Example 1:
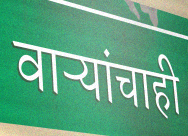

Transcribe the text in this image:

वाऱ्यांचाही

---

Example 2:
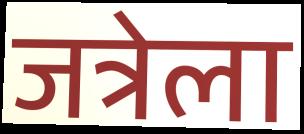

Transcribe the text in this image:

जत्रेला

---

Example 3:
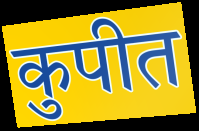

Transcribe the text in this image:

कुपीत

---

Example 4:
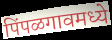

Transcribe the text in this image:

पिंपळगावमध्ये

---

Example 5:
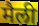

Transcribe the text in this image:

मैली